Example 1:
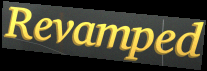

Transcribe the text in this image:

Revamped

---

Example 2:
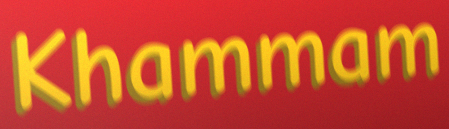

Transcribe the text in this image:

Khammam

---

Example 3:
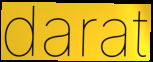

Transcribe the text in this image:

darat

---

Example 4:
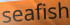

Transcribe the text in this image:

seafish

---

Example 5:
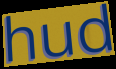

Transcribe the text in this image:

hud